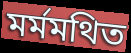
মর্মমথিত